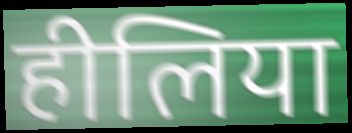
हीलिया